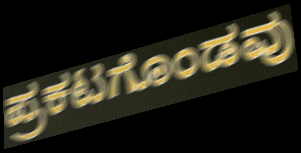
ಪ್ರಕಟಗೊಂಡವು